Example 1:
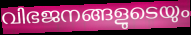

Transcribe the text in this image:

വിഭജനങ്ങളുടെയും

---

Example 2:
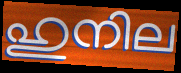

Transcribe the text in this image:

ഹുനില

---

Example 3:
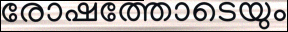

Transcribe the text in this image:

രോഷത്തോടെയും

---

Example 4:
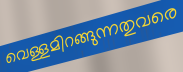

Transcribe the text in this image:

വെള്ളമിറങ്ങുന്നതുവരെ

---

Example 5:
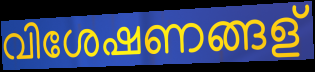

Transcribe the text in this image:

വിശേഷണങ്ങള്